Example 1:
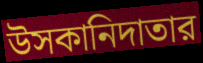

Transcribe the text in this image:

উসকানিদাতার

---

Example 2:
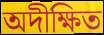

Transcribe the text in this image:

অদীক্ষিত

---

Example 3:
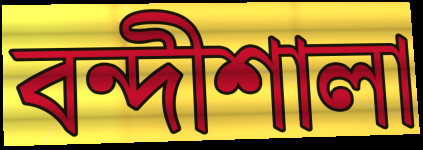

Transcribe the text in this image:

বন্দীশালা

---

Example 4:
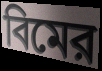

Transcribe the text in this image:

বিমের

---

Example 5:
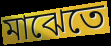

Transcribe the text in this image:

মাঝেতে